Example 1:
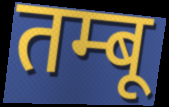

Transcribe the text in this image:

तम्बू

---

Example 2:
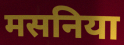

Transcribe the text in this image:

मसनिया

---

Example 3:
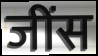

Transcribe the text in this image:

जींस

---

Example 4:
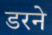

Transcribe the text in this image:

डरने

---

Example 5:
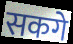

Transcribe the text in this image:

सकगे